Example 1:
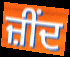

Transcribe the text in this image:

ਜ਼ੀਂਦ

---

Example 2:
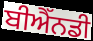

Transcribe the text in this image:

ਬੀਐੱਨਡੀ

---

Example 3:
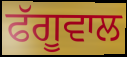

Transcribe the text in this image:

ਫੱਗੂਵਾਲ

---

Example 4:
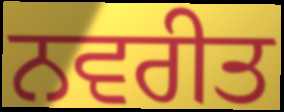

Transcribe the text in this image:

ਨਵਰੀਤ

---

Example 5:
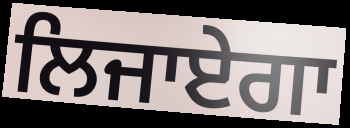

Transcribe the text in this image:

ਲਿਜਾਏਗਾ